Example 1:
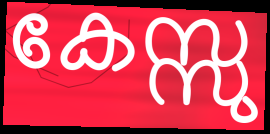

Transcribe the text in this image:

കേസ്സു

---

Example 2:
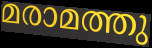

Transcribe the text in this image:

മരാമത്തു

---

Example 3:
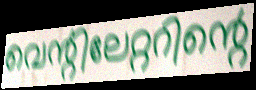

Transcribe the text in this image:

വെന്റിലേറ്ററിന്റെ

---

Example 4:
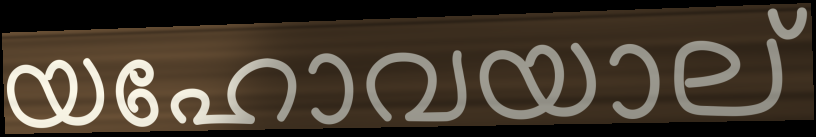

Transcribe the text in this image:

യഹോവയാല്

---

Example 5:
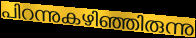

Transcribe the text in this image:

പിറന്നുകഴിഞ്ഞിരുന്നു